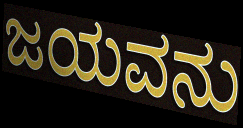
ಜಯವನು